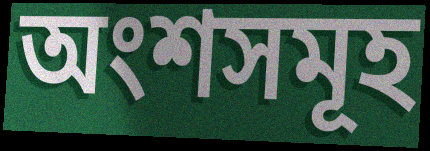
অংশসমূহ